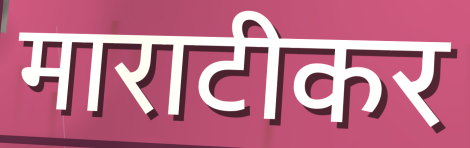
माराटीकर